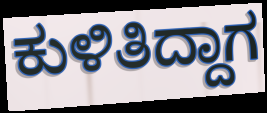
ಕುಳಿತಿದ್ದಾಗ